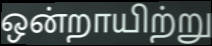
ஒன்றாயிற்று